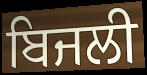
ਬਿਜਲੀ